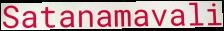
Satanamavali